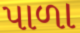
પાળા